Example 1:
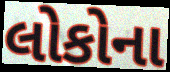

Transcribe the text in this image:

લોકોના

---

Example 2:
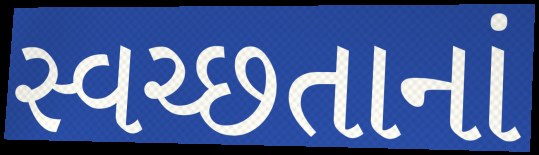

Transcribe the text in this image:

સ્વચ્છતાનાં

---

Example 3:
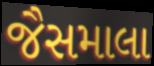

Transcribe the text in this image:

જૈસમાલા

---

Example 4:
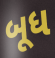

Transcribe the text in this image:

બૂધ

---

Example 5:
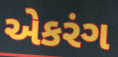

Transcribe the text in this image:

એકરંગ